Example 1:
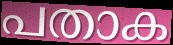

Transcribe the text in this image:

പതാക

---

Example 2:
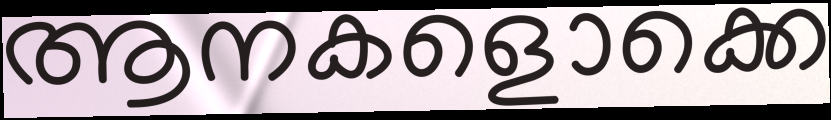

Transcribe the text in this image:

ആനകളൊക്കെ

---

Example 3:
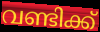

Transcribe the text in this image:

വണ്ടിക്ക്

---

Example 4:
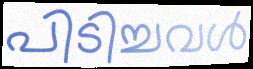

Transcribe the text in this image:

പിടിച്ചവൾ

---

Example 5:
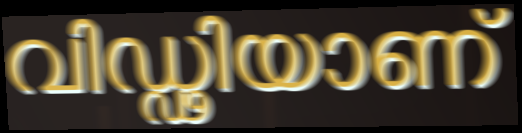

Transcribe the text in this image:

വിഡ്ഢിയാണ്